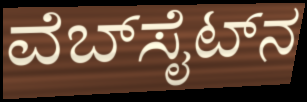
ವೆಬ್‍ಸೈಟ್‍ನ